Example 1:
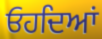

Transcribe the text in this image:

ਓਹਦਿਆਂ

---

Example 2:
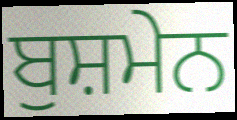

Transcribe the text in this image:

ਬੁਸ਼ਮੇਨ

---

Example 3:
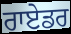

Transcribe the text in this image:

ਰਾਏਡਰ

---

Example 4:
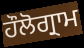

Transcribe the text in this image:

ਹੌਲੋਗ੍ਰਾਮ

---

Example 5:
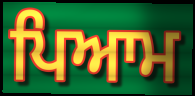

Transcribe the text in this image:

ਪਿਆਮ